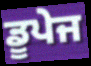
ਡੂਪੇਜ